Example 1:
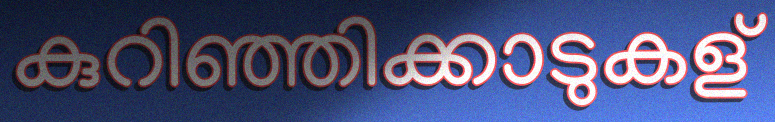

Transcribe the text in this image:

കുറിഞ്ഞിക്കാടുകള്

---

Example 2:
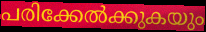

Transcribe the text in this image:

പരിക്കേൽക്കുകയും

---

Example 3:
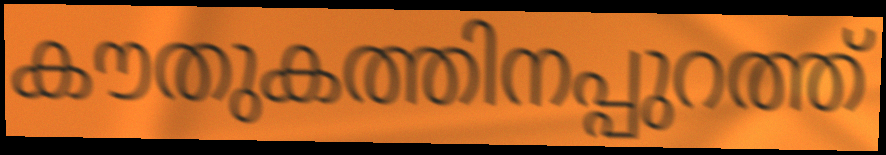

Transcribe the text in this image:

കൗതുകത്തിനപ്പുറത്ത്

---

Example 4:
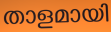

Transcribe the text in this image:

താളമായി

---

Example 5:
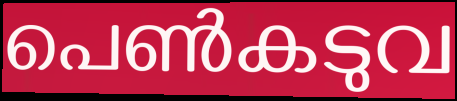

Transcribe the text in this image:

പെൺകടുവ